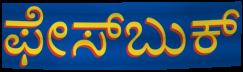
ಫೇಸ್‌ಬುಕ್